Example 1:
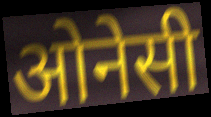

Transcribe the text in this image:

ओनेसी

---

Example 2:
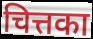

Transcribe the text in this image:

चित्तका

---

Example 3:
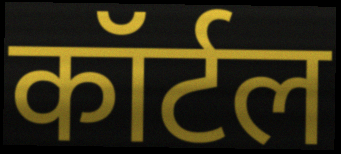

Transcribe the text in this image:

कॉर्टल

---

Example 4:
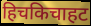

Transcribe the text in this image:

हिचकिचाहट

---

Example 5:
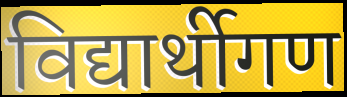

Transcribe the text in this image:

विद्यार्थीगण